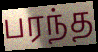
பரந்த